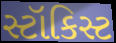
સ્ટૉકિસ્ટ